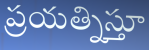
ప్రయత్నిస్తూ